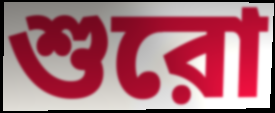
শুরো